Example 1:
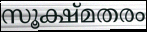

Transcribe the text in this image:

സൂക്ഷ്മതരം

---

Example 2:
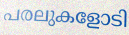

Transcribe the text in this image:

പരലുകളോടി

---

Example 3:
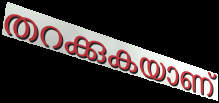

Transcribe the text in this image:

തറക്കുകയാണ്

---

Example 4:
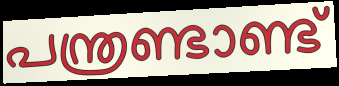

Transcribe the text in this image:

പന്ത്രണ്ടാണ്ട്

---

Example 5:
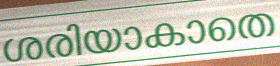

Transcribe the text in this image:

ശരിയാകാതെ